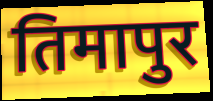
तिमापुर